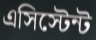
এসিস্টেন্ট